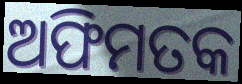
ଅଫିମତକ